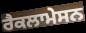
ਰੈਕਲਾਮੇਸਨ